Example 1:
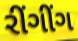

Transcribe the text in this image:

રીંગીંગ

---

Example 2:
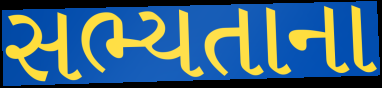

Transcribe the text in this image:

સભ્યતાના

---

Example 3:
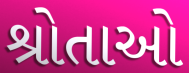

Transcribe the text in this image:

શ્રોતાઓ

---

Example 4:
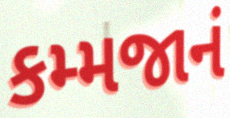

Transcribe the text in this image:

કમ્મજાનં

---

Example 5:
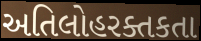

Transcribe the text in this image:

અતિલોહરક્તકતા